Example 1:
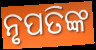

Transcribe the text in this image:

ନୃପତିଙ୍କ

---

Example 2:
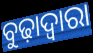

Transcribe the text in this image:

ବୁଢ଼ାଦ୍ୱାରା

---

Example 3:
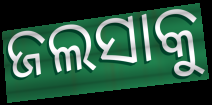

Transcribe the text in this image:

ଜଲସାକୁ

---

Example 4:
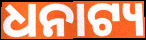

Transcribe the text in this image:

ଧନାଟ୍ୟ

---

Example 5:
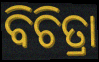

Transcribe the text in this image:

ବିଚିତ୍ରା